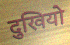
दुखियो